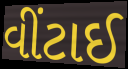
વીંટાઈ